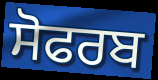
ਸੋਫਰਬ